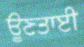
ਊਣਤਾਈ